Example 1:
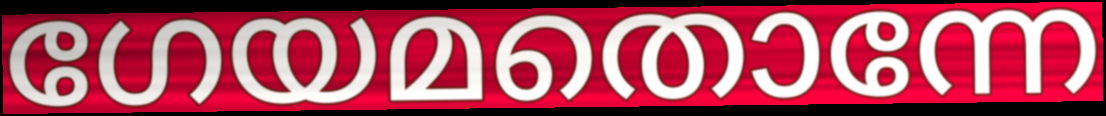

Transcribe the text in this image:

ഗേയമതൊന്നേ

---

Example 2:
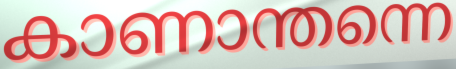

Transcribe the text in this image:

കാണാന്തന്നെ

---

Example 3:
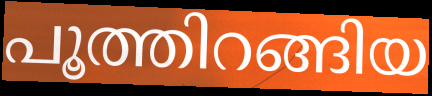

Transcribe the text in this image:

പൂത്തിറങ്ങിയ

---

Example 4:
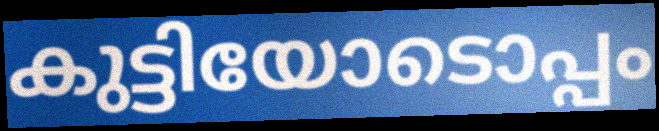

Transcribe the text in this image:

കുട്ടിയോടൊപ്പം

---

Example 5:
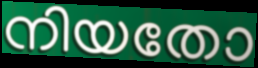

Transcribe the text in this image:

നിയതോ